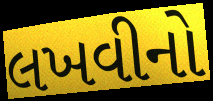
લખવીનો